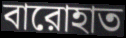
বারোহাত